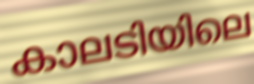
കാലടിയിലെ